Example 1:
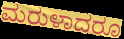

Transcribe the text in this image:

ಮರುಳಾದರೂ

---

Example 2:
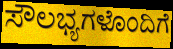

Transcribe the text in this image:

ಸೌಲಭ್ಯಗಳೊಂದಿಗೆ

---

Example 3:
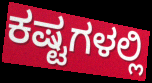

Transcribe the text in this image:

ಕಷ್ಟಗಳಲ್ಲಿ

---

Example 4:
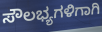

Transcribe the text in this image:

ಸೌಲಭ್ಯಗಳಿಗಾಗಿ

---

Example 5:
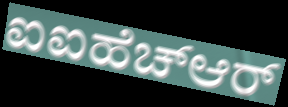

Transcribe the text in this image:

ಐಐಹೆಚ್ಆರ್